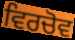
ਵਿਰਚੋਵ